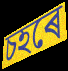
চহৰে